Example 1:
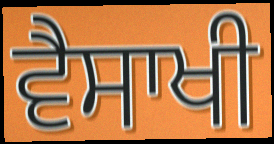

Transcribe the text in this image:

ਵੈਸਾਖੀ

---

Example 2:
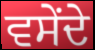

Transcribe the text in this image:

ਵਸੇਂਦੇ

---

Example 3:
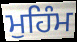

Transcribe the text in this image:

ਮੁਹਿੰਮ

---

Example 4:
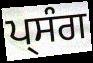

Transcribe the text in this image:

ਪ੍ਸੰਗ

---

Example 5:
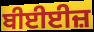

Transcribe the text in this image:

ਬੀਈਈਜ਼